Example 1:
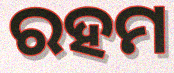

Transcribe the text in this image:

ରହମ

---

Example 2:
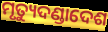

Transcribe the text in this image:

ମୃତ୍ୟୁଦଣ୍ଡାଦେଶ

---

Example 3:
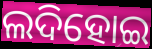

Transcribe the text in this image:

ଲଦିହୋଇ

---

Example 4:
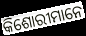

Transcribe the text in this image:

କିଶୋରୀମାନେ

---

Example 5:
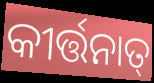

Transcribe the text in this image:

କୀର୍ତ୍ତନାତ୍